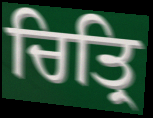
ਚਿਤ੍ਰਿ